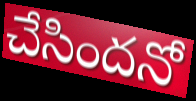
చేసిందనో